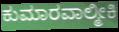
ಕುಮಾರವಾಲ್ಮೀಕಿ